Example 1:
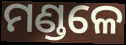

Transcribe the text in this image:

ମଣ୍ଡଳେ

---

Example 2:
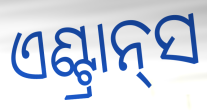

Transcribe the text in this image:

ଏଣ୍ଟ୍ରାନ୍‌ସ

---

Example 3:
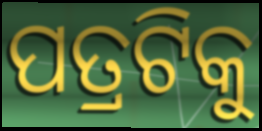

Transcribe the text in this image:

ପତ୍ରଟିକୁ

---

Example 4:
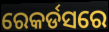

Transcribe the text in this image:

ରେକର୍ଡସରେ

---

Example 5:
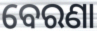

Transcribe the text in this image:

ବେରଣା